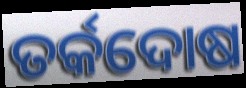
ତର୍କଦୋଷ